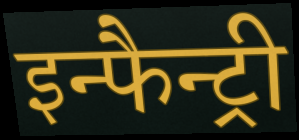
इन्फैन्ट्री